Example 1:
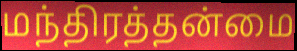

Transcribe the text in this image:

மந்திரத்தன்மை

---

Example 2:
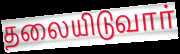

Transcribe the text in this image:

தலையிடுவார்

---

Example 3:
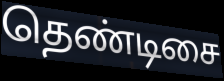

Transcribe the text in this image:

தெண்டிசை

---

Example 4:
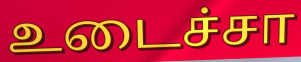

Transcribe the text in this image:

உடைச்சா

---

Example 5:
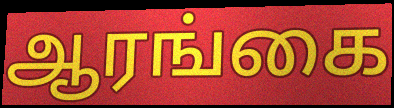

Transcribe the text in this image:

ஆரங்கை